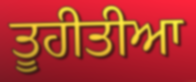
ਤੂਹੀਤੀਆ